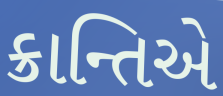
ક્રાન્તિએ